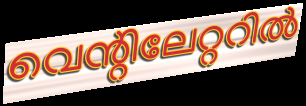
വെന്റിലേറ്ററിൽ